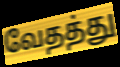
வேதத்து